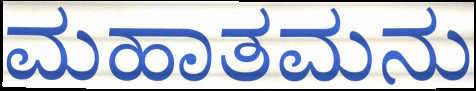
ಮಹಾತಮನು